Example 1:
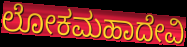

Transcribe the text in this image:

ಲೋಕಮಹಾದೇವಿ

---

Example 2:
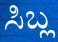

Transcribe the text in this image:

ಸಿಬ್ಲ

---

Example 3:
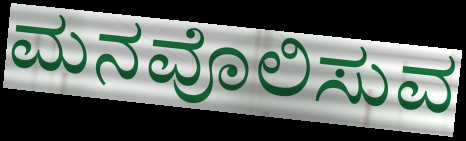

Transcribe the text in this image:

ಮನವೊಲಿಸುವ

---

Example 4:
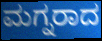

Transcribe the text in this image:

ಮಗ್ನರಾದ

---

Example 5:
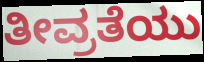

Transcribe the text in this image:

ತೀವ್ರತೆಯು